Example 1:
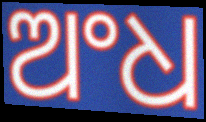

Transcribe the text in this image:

ଅଂଧ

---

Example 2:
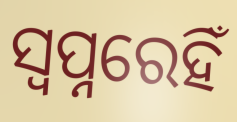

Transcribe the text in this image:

ସ୍ୱପ୍ନରେହିଁ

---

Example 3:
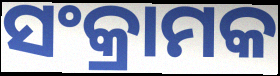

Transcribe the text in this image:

ସଂକ୍ରାମକ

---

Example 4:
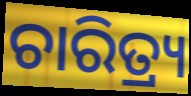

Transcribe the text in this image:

ଚାରିତ୍ର୍ୟ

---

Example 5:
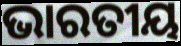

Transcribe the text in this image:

ଭାରତୀୟ